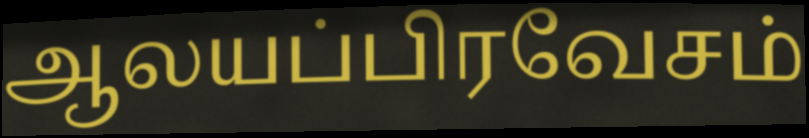
ஆலயப்பிரவேசம்